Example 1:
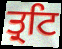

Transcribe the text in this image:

ਤ੍ਰਟਿ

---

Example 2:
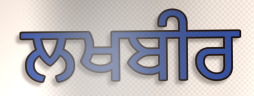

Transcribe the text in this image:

ਲਖਬੀਰ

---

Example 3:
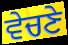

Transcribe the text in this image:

ਵੇਚਣੇ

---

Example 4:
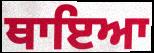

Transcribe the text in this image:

ਥਾਇਆ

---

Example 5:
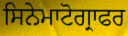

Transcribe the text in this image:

ਸਿਨੇਮਾਟੋਗ੍ਰਾਫਰ